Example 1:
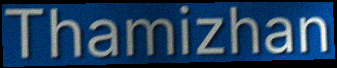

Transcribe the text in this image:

Thamizhan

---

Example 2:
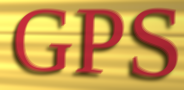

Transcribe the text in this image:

GPS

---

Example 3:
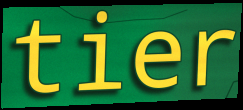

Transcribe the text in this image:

tier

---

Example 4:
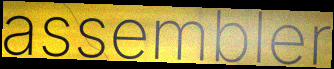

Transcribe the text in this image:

assembler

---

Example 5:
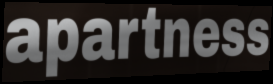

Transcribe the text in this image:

apartness